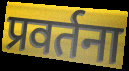
प्रवर्तना